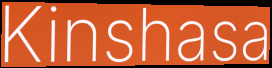
Kinshasa